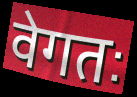
वेगतः